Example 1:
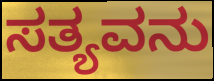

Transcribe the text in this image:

ಸತ್ಯವನು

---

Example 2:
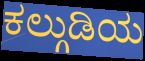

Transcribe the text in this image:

ಕಲ್ಗುಡಿಯ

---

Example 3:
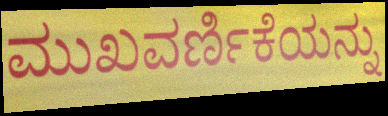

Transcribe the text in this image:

ಮುಖವರ್ಣಿಕೆಯನ್ನು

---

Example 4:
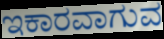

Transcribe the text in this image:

ಇಕಾರವಾಗುವ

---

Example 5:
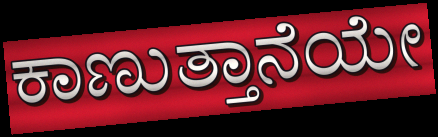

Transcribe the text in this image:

ಕಾಣುತ್ತಾನೆಯೇ